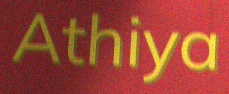
Athiya